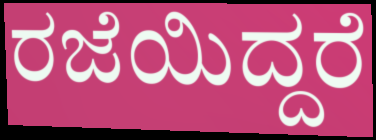
ರಜೆಯಿದ್ದರೆ